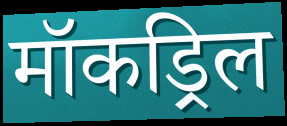
मॉकड्रिल